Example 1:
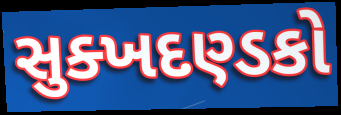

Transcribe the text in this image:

સુક્ખદણ્ડકો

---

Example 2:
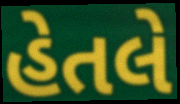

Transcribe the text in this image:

હેતલે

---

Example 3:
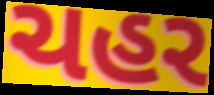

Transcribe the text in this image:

ચહર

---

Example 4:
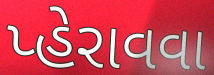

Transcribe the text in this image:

પ્હેરાવવા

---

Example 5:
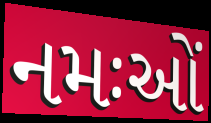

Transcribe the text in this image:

નમઃઓં